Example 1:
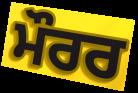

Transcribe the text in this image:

ਮੌਰਰ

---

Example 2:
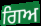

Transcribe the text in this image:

ਗਿਅ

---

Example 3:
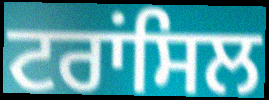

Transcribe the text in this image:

ਟਰਾਂਸਿਲ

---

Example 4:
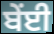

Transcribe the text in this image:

ਬੇਂਈ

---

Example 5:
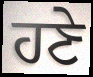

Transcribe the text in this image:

ਹਣੇ